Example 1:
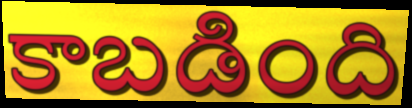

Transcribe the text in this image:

కాబడింది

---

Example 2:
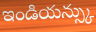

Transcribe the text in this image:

ఇండియన్స్కు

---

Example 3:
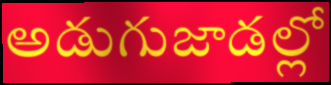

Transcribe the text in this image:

అడుగుజాడల్లో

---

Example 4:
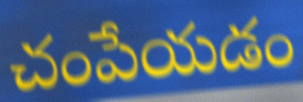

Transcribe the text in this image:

చంపేయడం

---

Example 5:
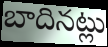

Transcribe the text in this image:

బాదినట్లు